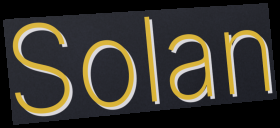
Solan